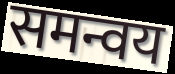
समन्वय